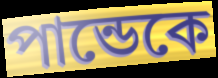
পান্ডেকে